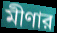
মীণার